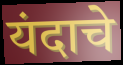
यंदाचे